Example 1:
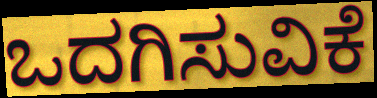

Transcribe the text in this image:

ಒದಗಿಸುವಿಕೆ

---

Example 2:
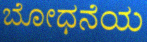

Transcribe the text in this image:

ಬೋಧನೆಯ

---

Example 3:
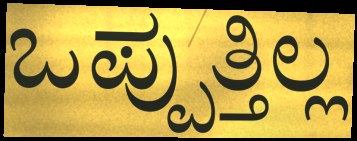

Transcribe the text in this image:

ಒಪ್ಪುತ್ತಿಲ್ಲ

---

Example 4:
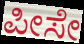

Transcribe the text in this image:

ಪೀಸೇ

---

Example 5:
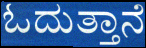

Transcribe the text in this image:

ಓದುತ್ತಾನೆ